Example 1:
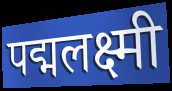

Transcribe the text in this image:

पद्मलक्ष्मी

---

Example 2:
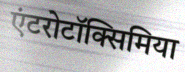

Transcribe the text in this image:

एंटरोटॉक्सिमिया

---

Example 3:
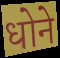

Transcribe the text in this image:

धोने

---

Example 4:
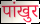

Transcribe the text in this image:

पांखुर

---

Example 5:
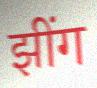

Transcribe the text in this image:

झींग